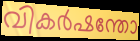
വികർഷന്തോ